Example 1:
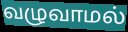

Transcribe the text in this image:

வழுவாமல்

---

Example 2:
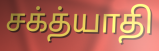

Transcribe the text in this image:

சக்த்யாதி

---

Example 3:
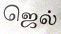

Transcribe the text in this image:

ஜெல்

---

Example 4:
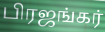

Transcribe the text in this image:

பிரஜங்கர்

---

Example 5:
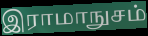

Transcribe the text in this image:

இராமாநுசம்